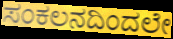
ಸಂಕಲನದಿಂದಲೇ